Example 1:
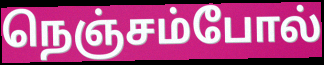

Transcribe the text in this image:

நெஞ்சம்போல்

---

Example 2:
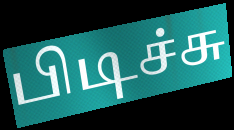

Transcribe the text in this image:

பிடிச்சு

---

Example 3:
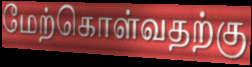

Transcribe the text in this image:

மேற்கொள்வதற்கு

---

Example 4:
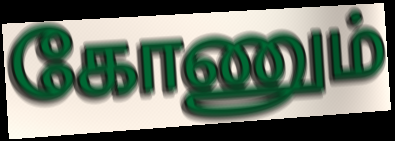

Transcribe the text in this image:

கோணும்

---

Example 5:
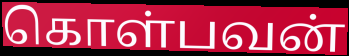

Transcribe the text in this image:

கொள்பவன்